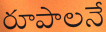
రూపాలనే